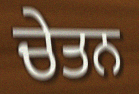
ਚੇਤਨ